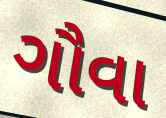
ગૌવા